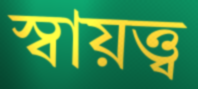
স্বায়ত্ত্ব